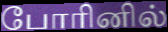
போரினில்